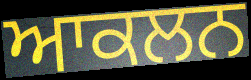
ਆਕਲਨ